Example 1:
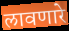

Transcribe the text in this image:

लावणारे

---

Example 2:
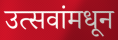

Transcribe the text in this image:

उत्सवांमधून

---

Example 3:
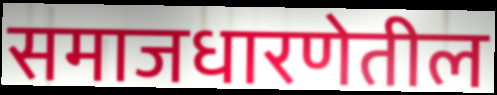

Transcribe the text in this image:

समाजधारणेतील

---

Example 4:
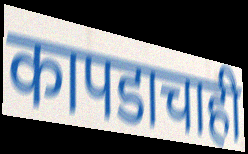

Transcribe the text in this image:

कापडाचाही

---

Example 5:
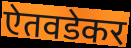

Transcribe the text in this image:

ऐतवडेकर